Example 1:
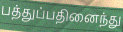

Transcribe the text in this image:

பத்துப்பதினைந்து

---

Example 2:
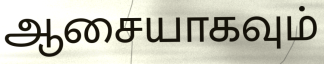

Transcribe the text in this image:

ஆசையாகவும்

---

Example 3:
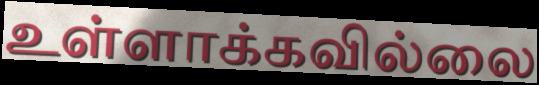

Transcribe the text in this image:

உள்ளாக்கவில்லை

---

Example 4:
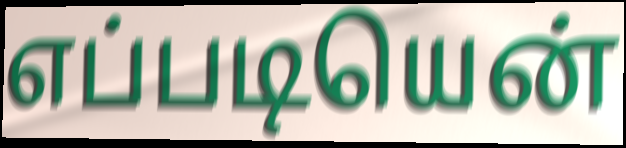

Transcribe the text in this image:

எப்படியென்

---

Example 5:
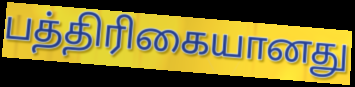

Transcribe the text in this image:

பத்திரிகையானது